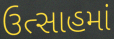
ઉત્સાહમાં